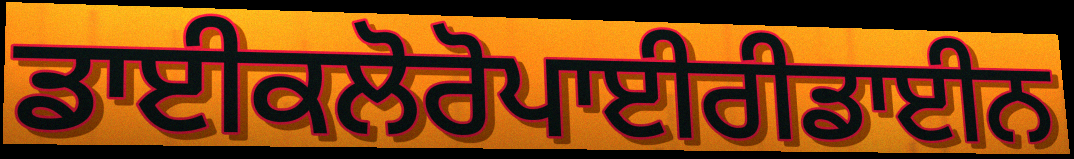
ਡਾਈਕਲੋਰੋਪਾਈਰੀਡਾਈਨ